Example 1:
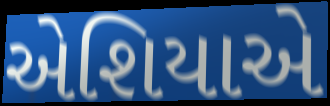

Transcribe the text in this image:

એશિયાએ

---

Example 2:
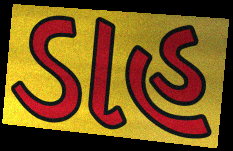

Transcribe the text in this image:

ડાહ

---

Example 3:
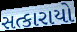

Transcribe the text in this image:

સત્કારાયો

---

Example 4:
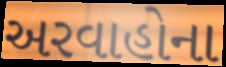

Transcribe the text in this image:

અરવાહોના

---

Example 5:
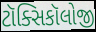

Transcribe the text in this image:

ટૉક્સિકૉલોજી